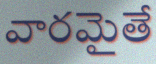
వారమైతే